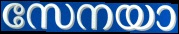
സേനയാ